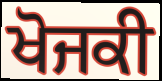
ਖੋਜਕੀ